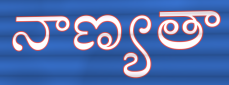
నాణ్యతా